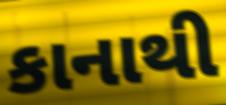
કાનાથી